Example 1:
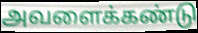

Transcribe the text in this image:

அவளைக்கண்டு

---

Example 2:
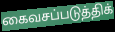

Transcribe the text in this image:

கைவசப்படுத்திக்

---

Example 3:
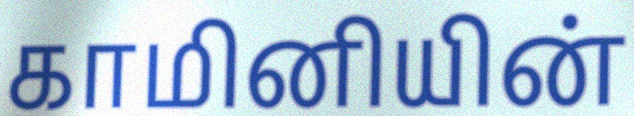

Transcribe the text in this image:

காமினியின்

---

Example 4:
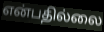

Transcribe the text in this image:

என்பதில்லை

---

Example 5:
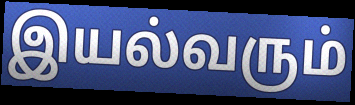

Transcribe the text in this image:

இயல்வரும்